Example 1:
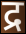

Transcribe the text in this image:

द्र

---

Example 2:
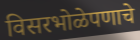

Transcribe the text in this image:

विसरभोळेपणाचे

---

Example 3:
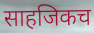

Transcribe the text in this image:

साहजिकच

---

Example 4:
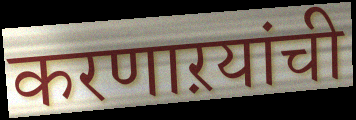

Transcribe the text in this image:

करणाऱयांची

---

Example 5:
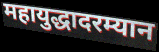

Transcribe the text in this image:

महायुद्धादरम्यान